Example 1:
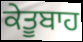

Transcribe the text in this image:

ਕੇਤੂਬਾਹ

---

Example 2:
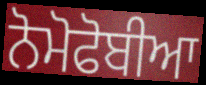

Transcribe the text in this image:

ਨੋਮੋਫੋਬੀਆ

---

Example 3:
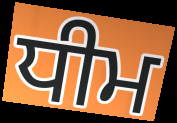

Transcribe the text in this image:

ਧੀਮ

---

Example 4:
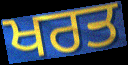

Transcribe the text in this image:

ਖਰਤ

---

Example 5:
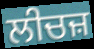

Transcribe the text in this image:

ਲੀਚਜ਼